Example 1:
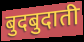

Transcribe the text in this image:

बुदबुदाती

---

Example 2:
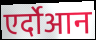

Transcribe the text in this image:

एर्दोआन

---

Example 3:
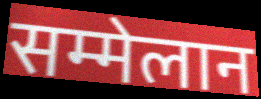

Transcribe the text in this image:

सम्मेलान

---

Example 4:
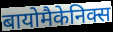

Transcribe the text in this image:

बायोमैकेनिक्स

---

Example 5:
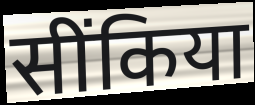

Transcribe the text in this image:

सींकिया